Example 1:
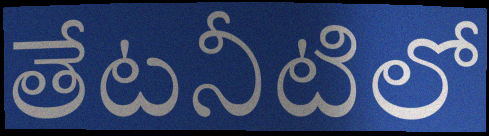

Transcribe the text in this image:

తేటనీటిలో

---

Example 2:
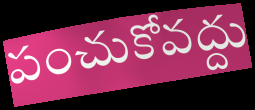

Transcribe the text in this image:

పంచుకోవద్దు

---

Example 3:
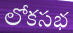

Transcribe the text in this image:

లోకసభ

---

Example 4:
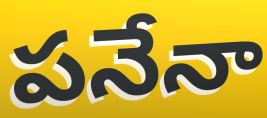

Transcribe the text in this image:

పనేనా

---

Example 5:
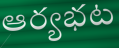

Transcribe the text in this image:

ఆర్యభట